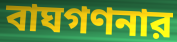
বাঘগণনার